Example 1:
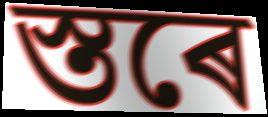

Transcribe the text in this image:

স্তৰে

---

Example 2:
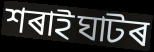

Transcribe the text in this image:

শৰাইঘাটৰ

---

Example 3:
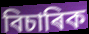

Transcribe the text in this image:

বিচাৰিক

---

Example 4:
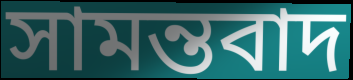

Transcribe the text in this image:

সামন্তবাদ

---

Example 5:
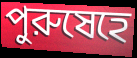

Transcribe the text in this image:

পুৰুষেহে